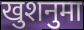
खुशनुमा